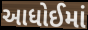
આધોઈમાં